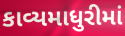
કાવ્યમાધુરીમાં